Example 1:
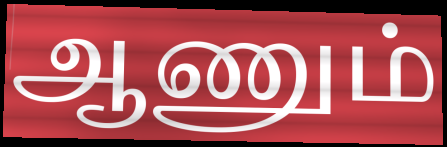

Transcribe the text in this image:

ஆணும்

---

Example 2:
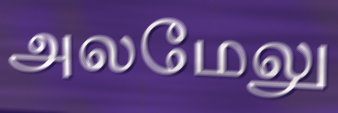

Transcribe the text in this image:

அலமேலு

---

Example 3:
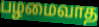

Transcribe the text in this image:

பழமைவாத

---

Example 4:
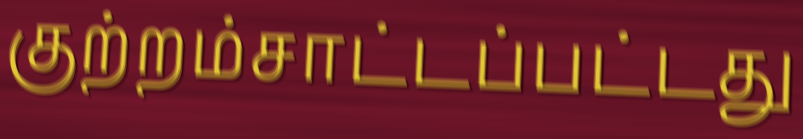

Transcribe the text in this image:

குற்றம்சாட்டப்பட்டது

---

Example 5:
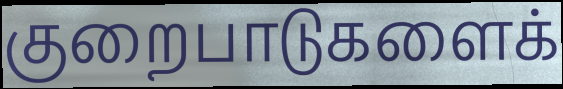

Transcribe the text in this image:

குறைபாடுகளைக்